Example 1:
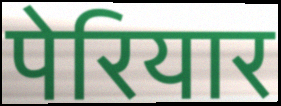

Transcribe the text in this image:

पेरियार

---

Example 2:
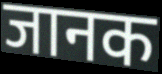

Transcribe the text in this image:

जानक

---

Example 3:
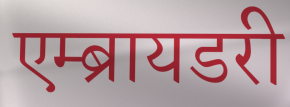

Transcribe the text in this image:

एम्ब्रायडरी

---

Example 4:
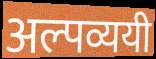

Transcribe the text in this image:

अल्पव्ययी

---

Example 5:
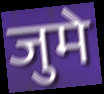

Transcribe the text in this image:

जुमे